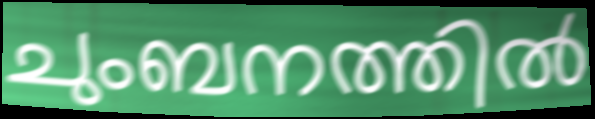
ചുംബനത്തിൽ